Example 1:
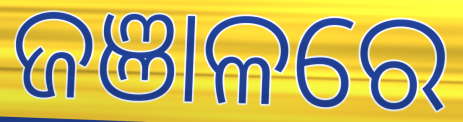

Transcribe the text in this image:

ଜଞାଳରେ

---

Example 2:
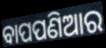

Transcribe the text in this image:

ବାପପଣିଆର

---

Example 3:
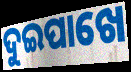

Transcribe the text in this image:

ଦୁଇପାଖେ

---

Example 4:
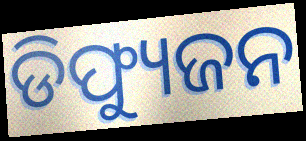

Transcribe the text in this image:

ଡିଫ୍ୟୁଜନ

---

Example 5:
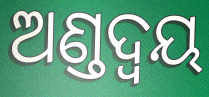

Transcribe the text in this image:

ଅଣ୍ଡଦ୍ୱୟ